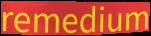
remedium